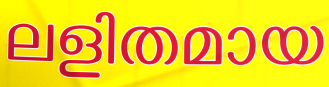
ലളിതമായ